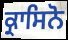
ਕ੍ਰਾਸਿਨੋ